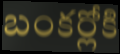
బంకర్లోకి